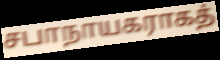
சபாநாயகராகத்